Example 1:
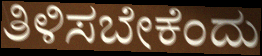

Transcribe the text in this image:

ತಿಳಿಸಬೇಕೆಂದು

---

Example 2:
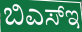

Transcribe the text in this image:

ಬಿಎಸ್ಇ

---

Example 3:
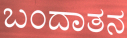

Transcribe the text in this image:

ಬಂದಾತನ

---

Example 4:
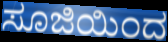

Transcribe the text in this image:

ಸೂಜಿಯಿಂದ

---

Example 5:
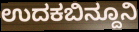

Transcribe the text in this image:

ಉದಕಬಿನ್ದೂನಿ